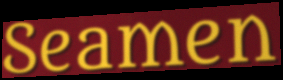
Seamen